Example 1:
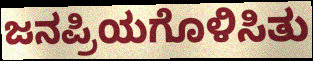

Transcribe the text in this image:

ಜನಪ್ರಿಯಗೊಳಿಸಿತು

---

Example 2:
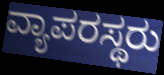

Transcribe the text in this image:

ವ್ಯಾಪರಸ್ಥರು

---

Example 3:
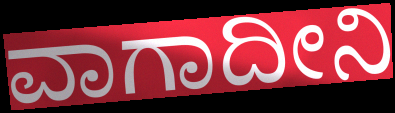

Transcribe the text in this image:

ವಾಗಾದೀನಿ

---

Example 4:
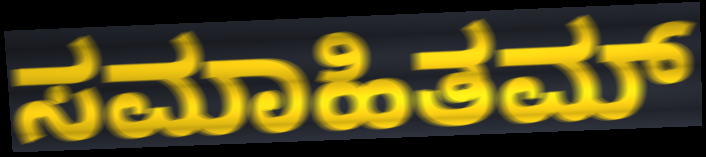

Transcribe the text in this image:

ಸಮಾಹಿತಮ್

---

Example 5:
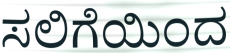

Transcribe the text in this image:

ಸಲಿಗೆಯಿಂದ